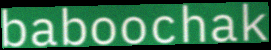
baboochak